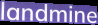
landmine